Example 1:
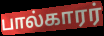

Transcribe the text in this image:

பால்காரர்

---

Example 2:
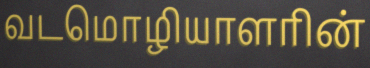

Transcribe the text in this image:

வடமொழியாளரின்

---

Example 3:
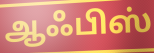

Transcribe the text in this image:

ஆஃபிஸ்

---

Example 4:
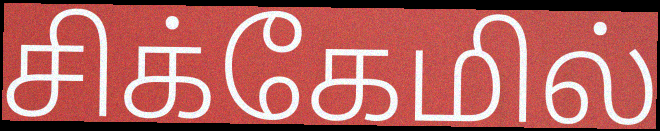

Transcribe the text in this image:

சிக்கேமில்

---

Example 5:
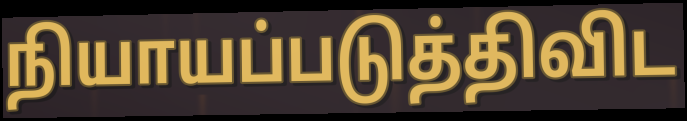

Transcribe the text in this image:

நியாயப்படுத்திவிட